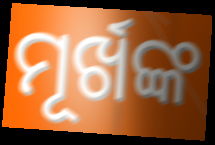
ମୂର୍ଖଙ୍କ